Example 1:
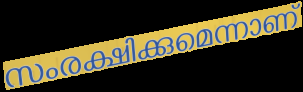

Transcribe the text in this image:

സംരക്ഷിക്കുമെന്നാണ്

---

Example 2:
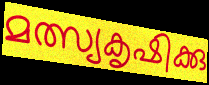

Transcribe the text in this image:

മത്സ്യകൃഷിക്കു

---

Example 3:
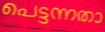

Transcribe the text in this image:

പെട്ടന്നതാ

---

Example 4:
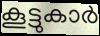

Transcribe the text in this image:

കൂട്ടുകാർ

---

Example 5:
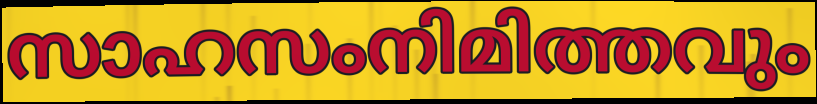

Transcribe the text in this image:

സാഹസംനിമിത്തവും